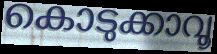
കൊടുക്കാവൂ